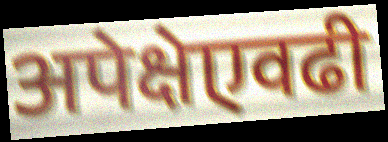
अपेक्षेएवढी